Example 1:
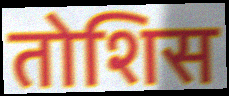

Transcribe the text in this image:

तोशिस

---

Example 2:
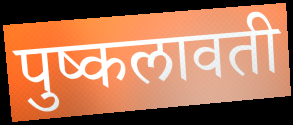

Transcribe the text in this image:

पुष्कलावती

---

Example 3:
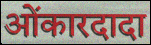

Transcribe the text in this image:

ओंकारदादा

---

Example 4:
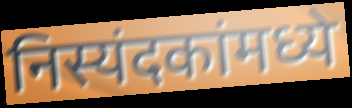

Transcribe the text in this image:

निस्यंदकांमध्ये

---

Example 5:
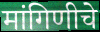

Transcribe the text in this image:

मांगिणीचे